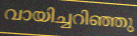
വായിച്ചറിഞ്ഞു